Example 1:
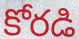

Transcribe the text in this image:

కోరడి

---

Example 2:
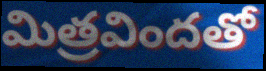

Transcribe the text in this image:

మిత్రవిందతో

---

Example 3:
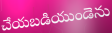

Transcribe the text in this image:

చేయబడియుండెను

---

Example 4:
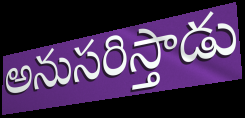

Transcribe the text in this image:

అనుసరిస్తాడు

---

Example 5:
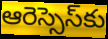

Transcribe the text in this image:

ఆరెస్సెస్‌కు